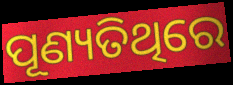
ପୂଣ୍ୟତିଥିରେ